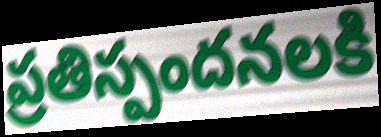
ప్రతిస్పందనలకి